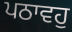
ਪਠਾਵਹੁ